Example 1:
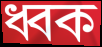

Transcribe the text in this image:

ধ্বক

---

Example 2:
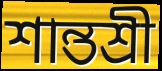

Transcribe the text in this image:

শান্তশ্রী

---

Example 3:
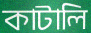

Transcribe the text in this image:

কাটালি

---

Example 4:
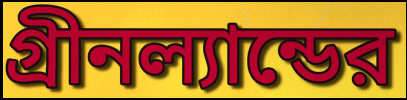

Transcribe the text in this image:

গ্রীনল্যান্ডের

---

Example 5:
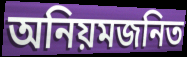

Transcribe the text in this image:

অনিয়মজনিত